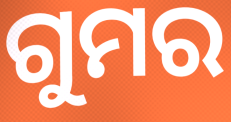
ଗୁମର